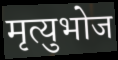
मृत्युभोज